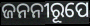
ଜନନୀରୂପେ